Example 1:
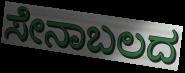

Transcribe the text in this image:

ಸೇನಾಬಲದ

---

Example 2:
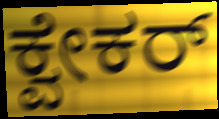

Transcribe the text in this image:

ಕ್ವೇಕರ್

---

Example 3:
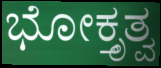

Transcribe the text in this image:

ಭೋಕ್ತೃತ್ವ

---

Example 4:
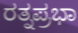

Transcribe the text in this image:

ರತ್ನಪ್ರಭಾ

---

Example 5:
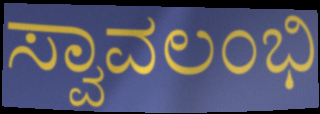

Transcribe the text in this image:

ಸ್ವಾವಲಂಭಿ